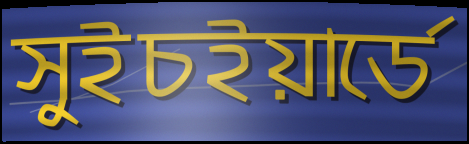
সুইচইয়ার্ডে